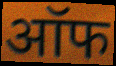
ऑफ